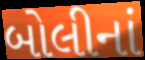
બોલીનાં